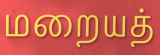
மறையத்